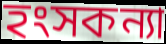
হংসকন্যা